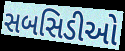
સબસિડીઓ